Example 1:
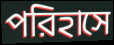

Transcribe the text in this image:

পরিহাসে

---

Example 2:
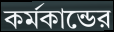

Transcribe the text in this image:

কর্মকান্ডের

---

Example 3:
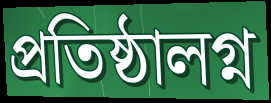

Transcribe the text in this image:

প্রতিষ্ঠালগ্ন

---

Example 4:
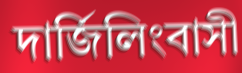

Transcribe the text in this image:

দার্জিলিংবাসী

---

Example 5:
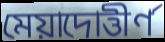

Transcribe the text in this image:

মেয়াদোত্তীর্ণ